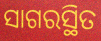
ସାଗରସ୍ଥିତ